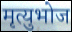
मृत्युभोज